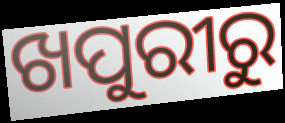
ଖପୁରୀରୁ